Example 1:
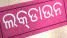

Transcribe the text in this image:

ଲକ୍‌ଡାଉନ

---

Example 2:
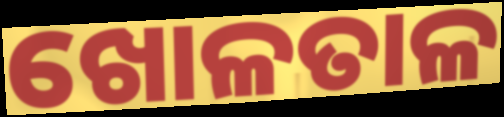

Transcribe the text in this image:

ଖୋଳତାଳ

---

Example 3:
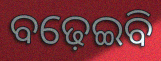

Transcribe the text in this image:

ବଢ଼େଇବି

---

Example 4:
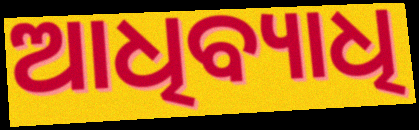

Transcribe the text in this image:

ଆଧିବ୍ୟାଧି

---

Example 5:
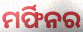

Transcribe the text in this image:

ମର୍ଫିନର